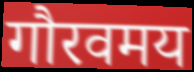
गौरवमय